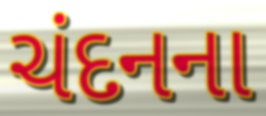
ચંદનના